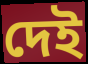
দেই